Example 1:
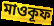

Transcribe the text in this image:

মাওকূফ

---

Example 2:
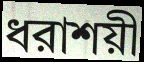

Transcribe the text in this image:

ধরাশয়ী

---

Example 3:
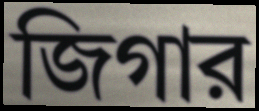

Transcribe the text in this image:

জিগার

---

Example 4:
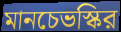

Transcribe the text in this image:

মানচেভস্কির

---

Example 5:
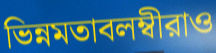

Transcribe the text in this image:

ভিন্নমতাবলম্বীরাও